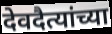
देवदैत्यांच्या